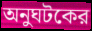
অনুঘটকের